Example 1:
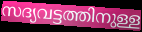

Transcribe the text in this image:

സദ്യവട്ടത്തിനുള്ള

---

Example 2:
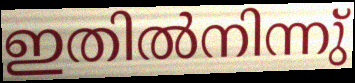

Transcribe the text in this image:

ഇതിൽനിന്നു്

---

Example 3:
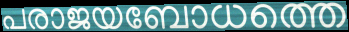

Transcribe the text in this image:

പരാജയബോധത്തെ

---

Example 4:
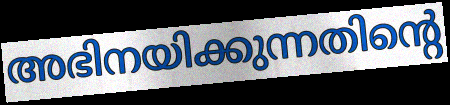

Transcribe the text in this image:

അഭിനയിക്കുന്നതിന്റെ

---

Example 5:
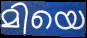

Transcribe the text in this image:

മിയെ